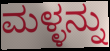
ಮಳ್ಳನ್ನು